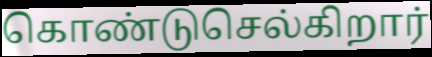
கொண்டுசெல்கிறார்